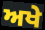
ਅਖੇ